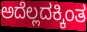
ಅದೆಲ್ಲದಕ್ಕಿಂತ